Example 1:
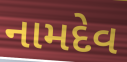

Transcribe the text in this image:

નામદેવ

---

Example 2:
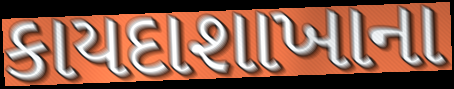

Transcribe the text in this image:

કાયદાશાખાના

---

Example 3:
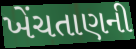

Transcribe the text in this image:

ખેંચતાણની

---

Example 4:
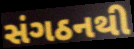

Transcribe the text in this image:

સંગઠનથી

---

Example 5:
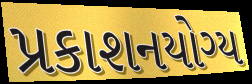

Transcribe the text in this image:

પ્રકાશનયોગ્ય